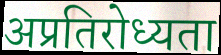
अप्रतिरोध्यता